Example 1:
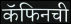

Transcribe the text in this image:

कॅफिनची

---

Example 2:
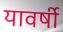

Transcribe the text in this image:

यावर्षी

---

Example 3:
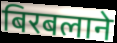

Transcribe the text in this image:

बिरबलाने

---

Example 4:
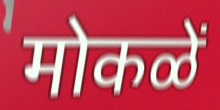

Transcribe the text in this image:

मोकळें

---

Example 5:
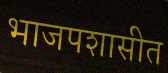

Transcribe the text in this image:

भाजपशासीत